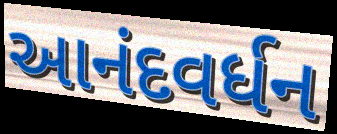
આનંદવર્ધન